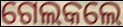
ଗେଲକଲେ